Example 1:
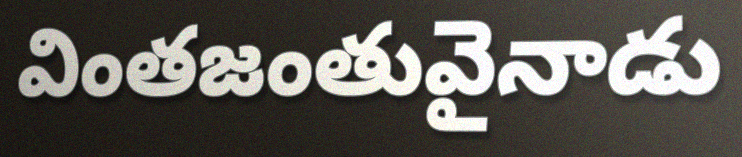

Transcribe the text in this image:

వింతజంతువైనాడు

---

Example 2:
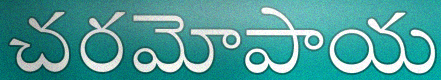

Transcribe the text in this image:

చరమోపాయ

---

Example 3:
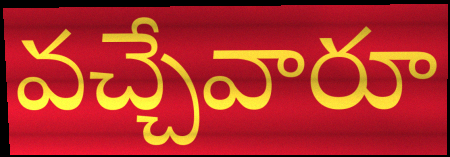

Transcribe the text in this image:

వచ్చేవారూ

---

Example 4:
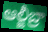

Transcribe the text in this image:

ఆల్జీబ్రా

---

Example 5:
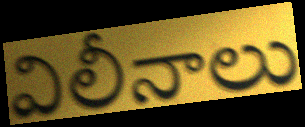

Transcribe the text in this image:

విలీనాలు